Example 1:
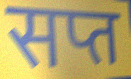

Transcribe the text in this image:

सप्त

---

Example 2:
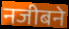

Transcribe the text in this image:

नजीबने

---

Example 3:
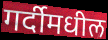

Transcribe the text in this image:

गर्दीमधील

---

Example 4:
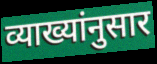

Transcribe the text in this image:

व्याख्यांनुसार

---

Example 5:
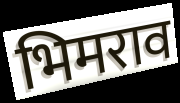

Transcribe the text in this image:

भिमराव